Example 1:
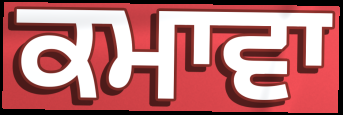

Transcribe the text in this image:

ਕਮਾਵਾ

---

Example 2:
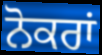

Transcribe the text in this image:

ਨੋਕਰਾਂ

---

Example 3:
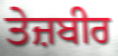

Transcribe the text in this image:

ਤੇਜ਼ਬੀਰ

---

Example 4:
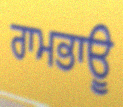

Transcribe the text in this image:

ਰਾਮਭਾਊ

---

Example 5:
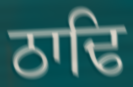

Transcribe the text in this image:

ਠਾਢਿ